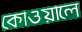
কোওয়ালে